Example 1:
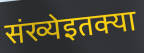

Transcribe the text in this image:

संख्येइतक्या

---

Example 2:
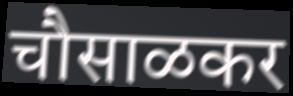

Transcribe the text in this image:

चौसाळकर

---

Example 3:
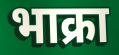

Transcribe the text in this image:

भाक्रा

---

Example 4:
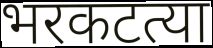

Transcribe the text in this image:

भरकटत्या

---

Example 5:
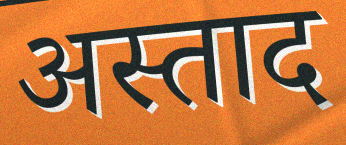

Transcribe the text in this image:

अस्ताद